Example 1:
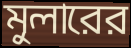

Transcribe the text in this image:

মুলারের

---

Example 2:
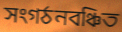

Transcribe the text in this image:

সংগঠনবঞ্চিত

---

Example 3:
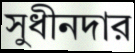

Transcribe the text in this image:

সুধীনদার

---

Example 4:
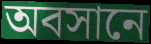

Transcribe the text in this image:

অবসানে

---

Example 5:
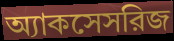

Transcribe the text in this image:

অ্যাকসেসরিজ